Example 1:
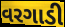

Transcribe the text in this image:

વરગાડી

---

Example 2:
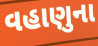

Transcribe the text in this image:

વહાણુના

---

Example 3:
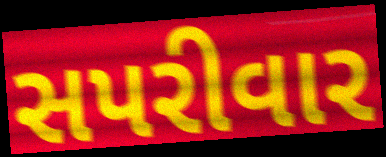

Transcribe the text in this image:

સપરીવાર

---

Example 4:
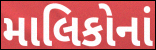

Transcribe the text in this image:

માલિકોનાં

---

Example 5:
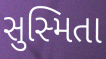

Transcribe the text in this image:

સુસ્મિતા